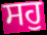
ਸਹੁ